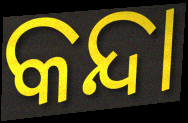
କନ୍ଦା